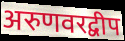
अरुणवरद्वीप